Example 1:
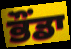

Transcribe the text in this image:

ਭੌਂਡਾ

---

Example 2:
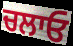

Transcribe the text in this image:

ਚਲਾਓ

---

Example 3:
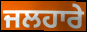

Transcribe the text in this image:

ਜਲਹਾਰੇ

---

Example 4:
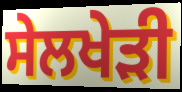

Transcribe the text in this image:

ਸੇਲਖੇੜੀ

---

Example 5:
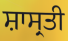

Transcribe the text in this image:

ਸ਼ਾਸ੍ਰਤੀ